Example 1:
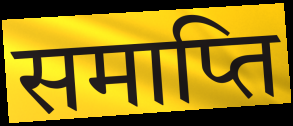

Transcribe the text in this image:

समाप्‍ति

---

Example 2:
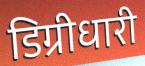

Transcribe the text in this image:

डिग्रीधारी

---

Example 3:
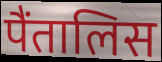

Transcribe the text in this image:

पैंतालिस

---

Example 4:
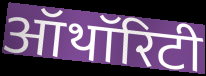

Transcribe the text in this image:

ऑथॉरिटी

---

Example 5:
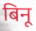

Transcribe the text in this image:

बिनू